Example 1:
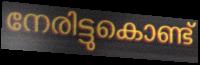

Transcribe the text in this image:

നേരിട്ടുകൊണ്ട്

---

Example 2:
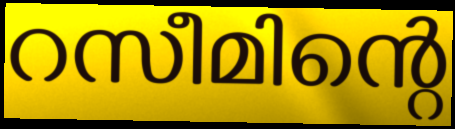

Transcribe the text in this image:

റസീമിന്റെ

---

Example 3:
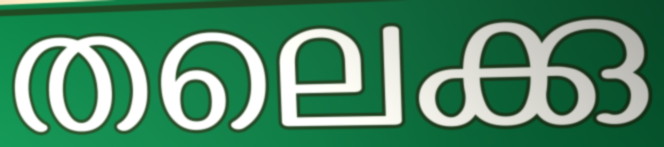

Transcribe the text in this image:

തലെക്കു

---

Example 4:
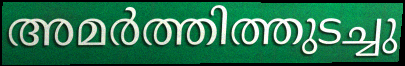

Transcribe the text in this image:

അമർത്തിത്തുടച്ചു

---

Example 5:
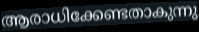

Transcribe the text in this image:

ആരാധിക്കേണ്ടതാകുന്നു